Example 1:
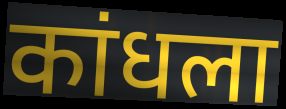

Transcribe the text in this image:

कांधला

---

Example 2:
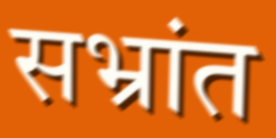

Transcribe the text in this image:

सभ्रांत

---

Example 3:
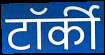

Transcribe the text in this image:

टॉर्की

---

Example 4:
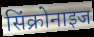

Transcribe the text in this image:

सिंक्रोनाइज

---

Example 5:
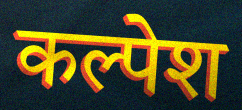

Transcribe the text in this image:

कल्पेश